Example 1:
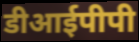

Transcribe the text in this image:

डीआईपीपी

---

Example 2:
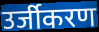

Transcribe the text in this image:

उर्जीकरण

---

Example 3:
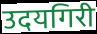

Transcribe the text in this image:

उदयगिरी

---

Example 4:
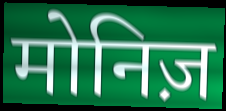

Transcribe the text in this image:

मोनिज़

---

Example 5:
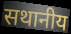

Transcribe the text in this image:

सथानीय